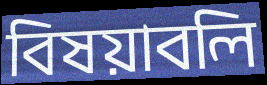
বিষয়াবলি